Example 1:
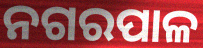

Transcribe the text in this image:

ନଗରପାଳ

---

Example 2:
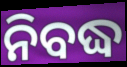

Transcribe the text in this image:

ନିବଦ୍ଧ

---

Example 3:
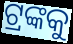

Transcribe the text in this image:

ଟ୍ରଙ୍କକୁ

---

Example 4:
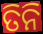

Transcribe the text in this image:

ତିନି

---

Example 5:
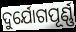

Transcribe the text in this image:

ଦୁର୍ଯୋଗପୂର୍ଣ୍ଣ